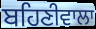
ਬਹਿਣੀਵਾਲਾ